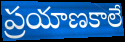
ప్రయాణకాలే